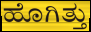
ಹೊಗಿತ್ತು